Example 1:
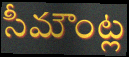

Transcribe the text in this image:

సీమౌంట్ల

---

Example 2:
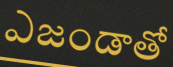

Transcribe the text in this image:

ఎజండాతో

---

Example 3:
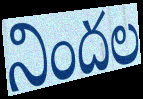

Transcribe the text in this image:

నిందల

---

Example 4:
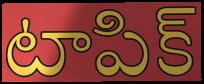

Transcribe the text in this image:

టాపిక్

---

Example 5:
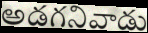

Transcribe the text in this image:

అడగనివాడు